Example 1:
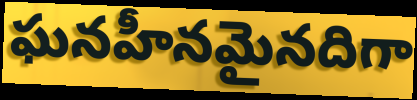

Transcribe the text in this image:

ఘనహీనమైనదిగా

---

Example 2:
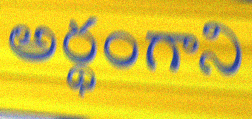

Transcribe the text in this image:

అర్థంగాని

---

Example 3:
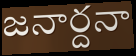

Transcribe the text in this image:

జనార్దనా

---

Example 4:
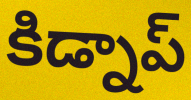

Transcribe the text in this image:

కిడ్నాప్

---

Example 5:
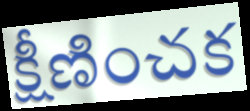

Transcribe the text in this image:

క్షీణించక